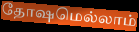
தோஷமெல்லாம்